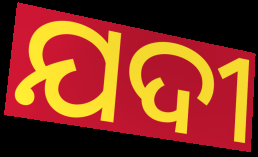
ଯଦୀ